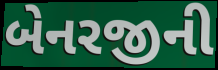
બેનરજીની